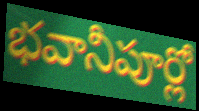
భవానీపూర్లో